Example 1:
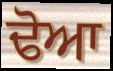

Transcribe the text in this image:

ਢੋਆ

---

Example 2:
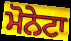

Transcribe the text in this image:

ਮੋਨੇਟਾ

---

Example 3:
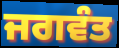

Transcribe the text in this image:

ਜਗਵੰਤ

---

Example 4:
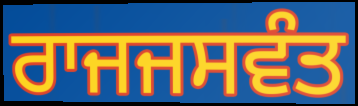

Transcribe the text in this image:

ਰਾਜਜਸਵੰਤ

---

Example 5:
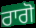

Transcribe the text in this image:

ਰਾਗੋ